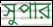
সুপার